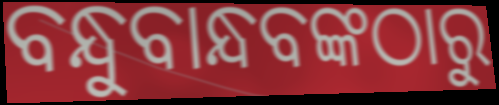
ବନ୍ଧୁବାନ୍ଧବଙ୍କଠାରୁ